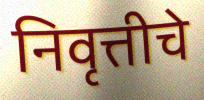
निवृत्तीचे